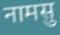
नामसु